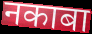
नकाबा